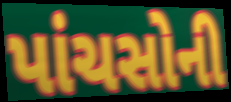
પાંચસોની